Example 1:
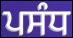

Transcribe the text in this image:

ਪਸੰਧ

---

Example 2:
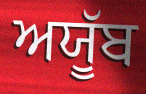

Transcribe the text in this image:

ਅਯੂੱਬ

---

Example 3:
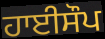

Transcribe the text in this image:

ਹਾਈਸੌਪ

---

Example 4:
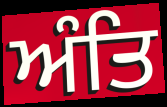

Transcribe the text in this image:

ਅੰਤਿ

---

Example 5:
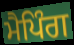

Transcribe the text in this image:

ਮੈਪਿੰਗ